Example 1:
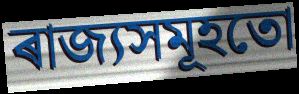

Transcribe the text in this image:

ৰাজ্যসমূহতো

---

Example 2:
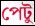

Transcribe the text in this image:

পেটু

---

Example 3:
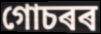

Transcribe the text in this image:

গোচৰৰ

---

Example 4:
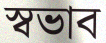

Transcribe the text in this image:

স্বভাব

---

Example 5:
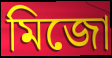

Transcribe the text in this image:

মিজো